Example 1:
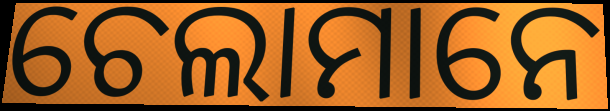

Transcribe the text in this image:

ଚେଲାମାନେ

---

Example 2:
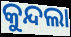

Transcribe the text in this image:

କୁନ୍ଦଲା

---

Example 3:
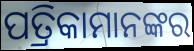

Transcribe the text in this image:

ପତ୍ରିକାମାନଙ୍କର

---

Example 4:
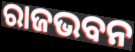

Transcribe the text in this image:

ରାଜଭବନ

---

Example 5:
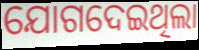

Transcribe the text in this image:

ଯୋଗଦେଇଥିଲା